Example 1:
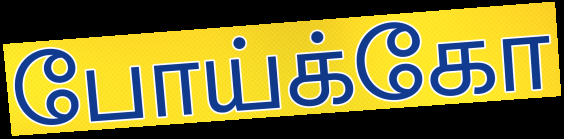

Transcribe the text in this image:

போய்க்கோ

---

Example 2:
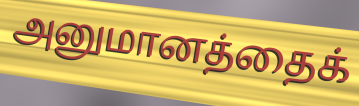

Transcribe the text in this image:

அனுமானத்தைக்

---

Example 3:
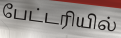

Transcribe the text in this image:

பேட்டரியில்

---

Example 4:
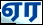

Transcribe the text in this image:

ஏர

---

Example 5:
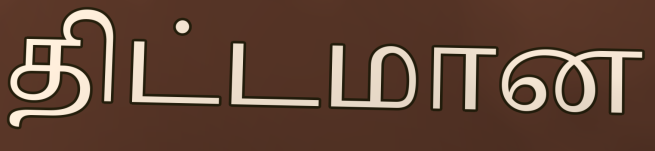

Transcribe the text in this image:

திட்டமான